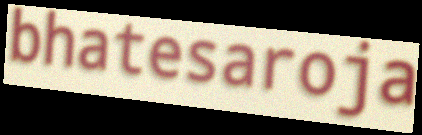
bhatesaroja